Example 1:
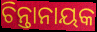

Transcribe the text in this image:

ଚିନ୍ତାନାୟକ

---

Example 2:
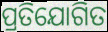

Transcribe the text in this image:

ପ୍ରତିଯୋଗିତ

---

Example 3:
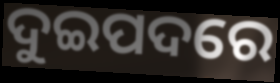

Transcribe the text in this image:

ଦୁଇପଦରେ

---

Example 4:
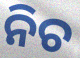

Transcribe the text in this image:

ନିଚ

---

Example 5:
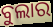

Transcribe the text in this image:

ବୁଲାର